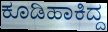
ಕೂಡಿಹಾಕಿದ್ದ